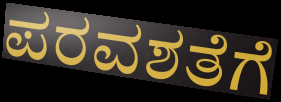
ಪರವಶತೆಗೆ